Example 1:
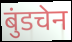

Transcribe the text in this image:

बुंडचेन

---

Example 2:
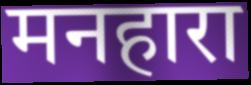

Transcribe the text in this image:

मनहारा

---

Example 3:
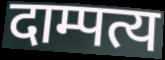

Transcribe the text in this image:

दाम्पत्य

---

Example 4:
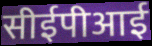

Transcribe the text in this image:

सीईपीआई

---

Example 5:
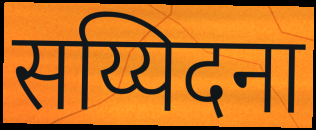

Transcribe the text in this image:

सय्यिदना